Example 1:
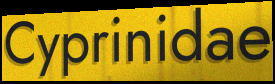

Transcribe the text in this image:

Cyprinidae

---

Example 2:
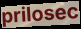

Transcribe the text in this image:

prilosec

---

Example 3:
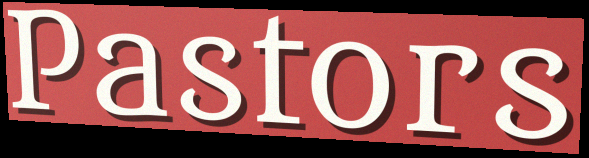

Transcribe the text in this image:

Pastors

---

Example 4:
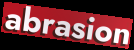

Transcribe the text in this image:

abrasion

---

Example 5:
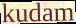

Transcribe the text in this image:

kudam